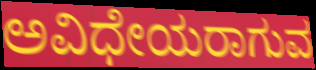
ಅವಿಧೇಯರಾಗುವ